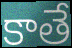
కాతే